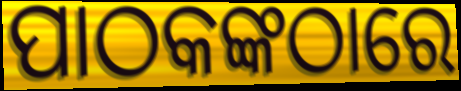
ପାଠକଙ୍କଠାରେ